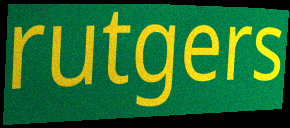
rutgers